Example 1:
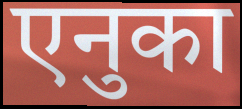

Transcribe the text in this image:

एनुका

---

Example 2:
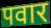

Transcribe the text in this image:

पवार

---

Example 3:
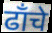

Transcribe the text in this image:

ढाँचे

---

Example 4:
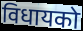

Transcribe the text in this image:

विधायको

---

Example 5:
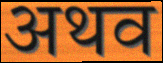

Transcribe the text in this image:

अथव